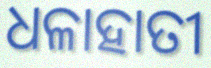
ଧଳାହାତୀ